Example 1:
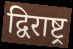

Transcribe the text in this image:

द्विराष्ट्र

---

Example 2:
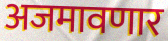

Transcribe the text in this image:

अजमावणार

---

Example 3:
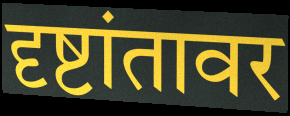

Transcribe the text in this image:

दृष्टांतावर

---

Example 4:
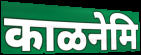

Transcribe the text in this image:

काळनेमि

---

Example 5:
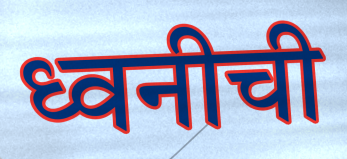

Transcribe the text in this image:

ध्वनीची